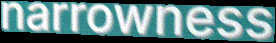
narrowness